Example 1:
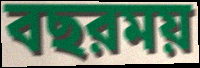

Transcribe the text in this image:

বছরময়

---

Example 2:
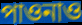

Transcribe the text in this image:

পাওনাও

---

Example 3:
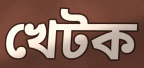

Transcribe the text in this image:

খেটক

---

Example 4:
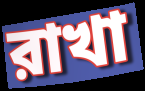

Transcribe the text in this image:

রাখা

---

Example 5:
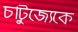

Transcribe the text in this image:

চাটুজ্যেকে